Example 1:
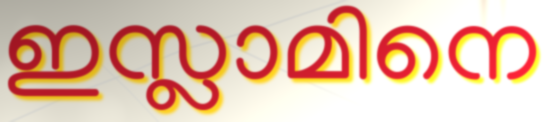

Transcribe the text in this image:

ഇസ്ലാമിനെ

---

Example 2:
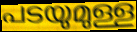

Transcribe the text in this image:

പടയുമുള്ള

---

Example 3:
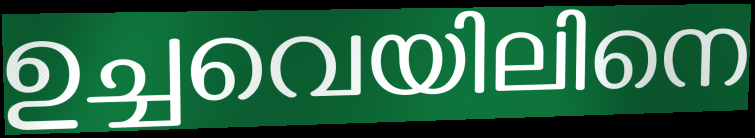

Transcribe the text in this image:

ഉച്ചവെയിലിനെ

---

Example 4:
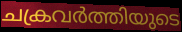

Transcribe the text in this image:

ചക്രവർത്തിയുടെ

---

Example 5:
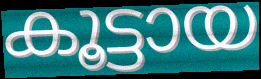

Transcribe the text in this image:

കൂട്ടായ